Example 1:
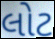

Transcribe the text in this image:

લોટ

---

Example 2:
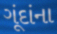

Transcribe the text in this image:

ગૂંદાંના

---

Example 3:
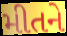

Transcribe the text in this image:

મીતને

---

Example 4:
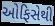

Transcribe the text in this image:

ઓફિસેથી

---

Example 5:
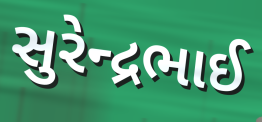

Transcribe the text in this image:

સુરેન્દ્રભાઈ